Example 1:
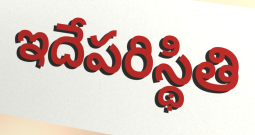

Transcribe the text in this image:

ఇదేపరిస్థితి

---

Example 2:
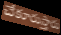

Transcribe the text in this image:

చేకూరుస్తారు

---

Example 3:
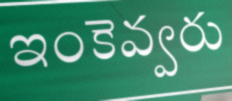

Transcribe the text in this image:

ఇంకెవ్వరు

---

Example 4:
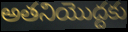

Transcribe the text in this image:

అతనియొద్దకు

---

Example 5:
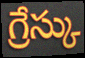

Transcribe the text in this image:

గ్రేస్కు